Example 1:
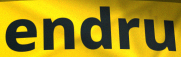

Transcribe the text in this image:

endru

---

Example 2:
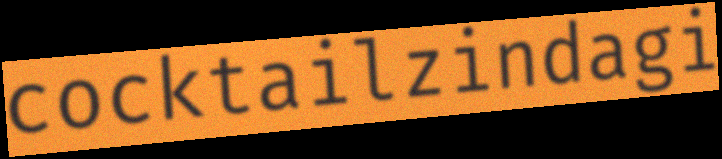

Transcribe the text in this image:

cocktailzindagi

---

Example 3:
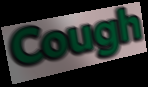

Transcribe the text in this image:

Cough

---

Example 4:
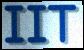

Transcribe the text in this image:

IIT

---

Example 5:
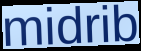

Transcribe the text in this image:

midrib